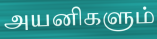
அயனிகளும்